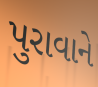
પુરાવાને